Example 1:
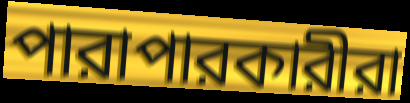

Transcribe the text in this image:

পারাপারকারীরা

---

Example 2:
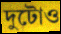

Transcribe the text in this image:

দুটোও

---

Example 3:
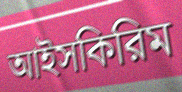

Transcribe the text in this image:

আইসকিরিম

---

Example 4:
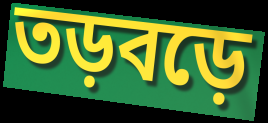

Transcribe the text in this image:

তড়বড়ে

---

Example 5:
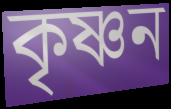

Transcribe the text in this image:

কৃষ্ণন